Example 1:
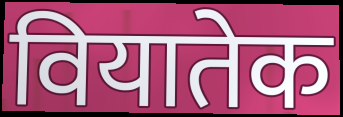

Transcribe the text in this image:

वियातेक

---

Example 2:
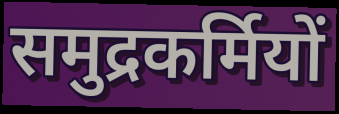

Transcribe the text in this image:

समुद्रकर्मियों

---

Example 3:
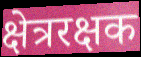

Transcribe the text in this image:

क्षेत्ररक्षक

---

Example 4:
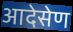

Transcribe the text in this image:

आदेसेण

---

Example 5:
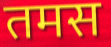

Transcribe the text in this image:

तमस